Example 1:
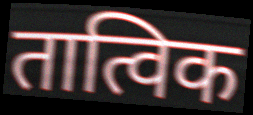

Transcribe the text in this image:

तात्विक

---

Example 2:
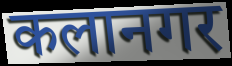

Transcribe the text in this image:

कलानगर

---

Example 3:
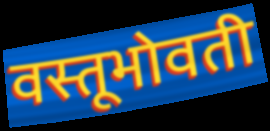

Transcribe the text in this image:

वस्तूभोवती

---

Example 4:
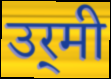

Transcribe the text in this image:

उर्मी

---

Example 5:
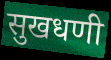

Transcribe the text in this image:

सुखधणी